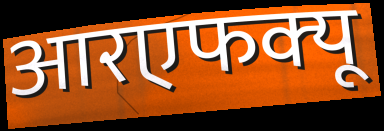
आरएफक्यू